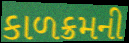
કાળક્રમની